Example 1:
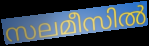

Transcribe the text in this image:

സലമീസിൽ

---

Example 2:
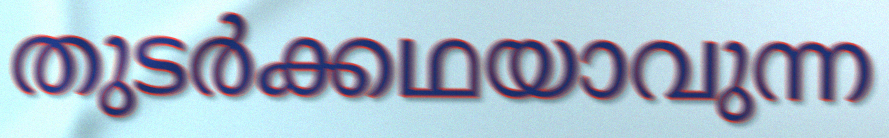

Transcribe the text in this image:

തുടർക്കഥയാവുന്ന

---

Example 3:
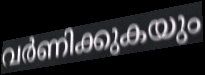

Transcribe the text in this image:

വർണിക്കുകയും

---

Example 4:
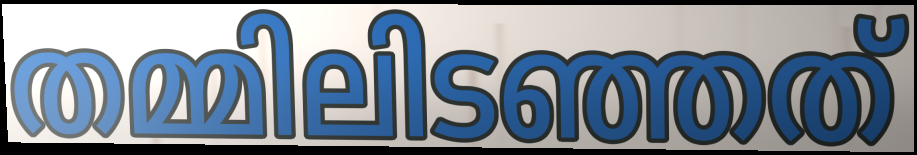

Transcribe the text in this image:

തമ്മിലിടഞ്ഞത്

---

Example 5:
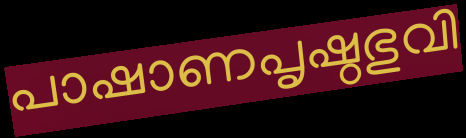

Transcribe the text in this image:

പാഷാണപൃഷ്ഠഭുവി